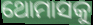
ଥୋମାସକୁ